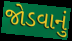
જોડવાનું